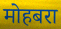
मोहबरा